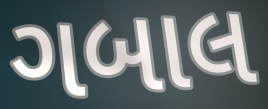
ગબાલ